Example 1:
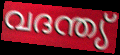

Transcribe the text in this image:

വദന്ത്യ്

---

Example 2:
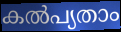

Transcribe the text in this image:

കൽപ്യതാം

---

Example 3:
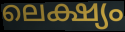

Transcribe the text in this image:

ലെക്ഷ്യം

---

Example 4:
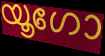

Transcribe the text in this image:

യൂഗോ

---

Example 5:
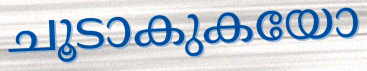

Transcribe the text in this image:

ചൂടാകുകയോ